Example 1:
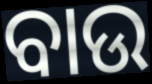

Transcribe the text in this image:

ବାଉ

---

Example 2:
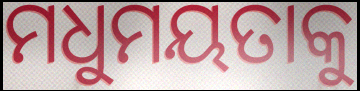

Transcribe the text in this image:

ମଧୁମୟତାକୁ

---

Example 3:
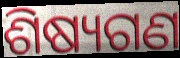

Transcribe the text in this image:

ଶିଷ୍ୟଗଣ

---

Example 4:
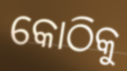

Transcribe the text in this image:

କୋଠିକୁ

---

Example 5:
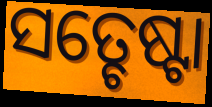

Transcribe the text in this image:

ସତ୍ଚେଷ୍ଟା